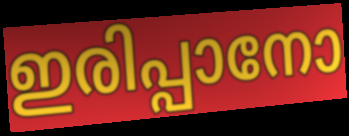
ഇരിപ്പാനോ